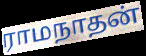
ராமநாதன்